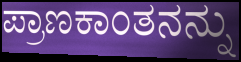
ಪ್ರಾಣಕಾಂತನನ್ನು